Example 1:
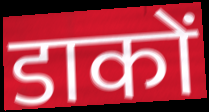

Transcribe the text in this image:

डाकों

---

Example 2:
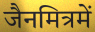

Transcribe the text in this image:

जैनमित्रमें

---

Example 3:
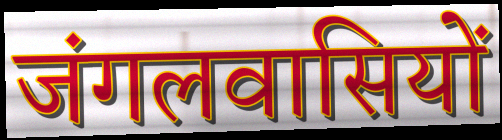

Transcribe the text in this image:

जंगलवासियों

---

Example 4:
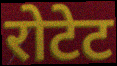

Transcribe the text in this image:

रोटेट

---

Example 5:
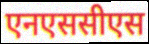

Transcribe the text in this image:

एनएससीएस